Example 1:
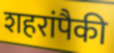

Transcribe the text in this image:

शहरांपैकी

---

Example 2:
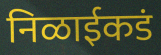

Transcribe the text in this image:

निळाईकडं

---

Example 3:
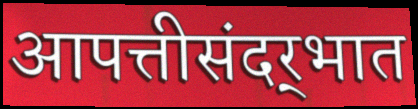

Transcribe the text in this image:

आपत्तीसंदर्भात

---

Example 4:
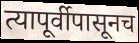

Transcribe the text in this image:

त्यापूर्वीपासूनच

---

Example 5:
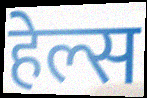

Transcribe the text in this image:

हेल्स